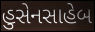
હુસેનસાહેબ